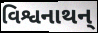
વિશ્વનાથન્